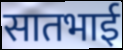
सातभाई